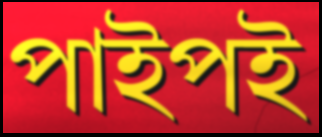
পাইপই